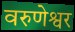
वरुणेश्वर